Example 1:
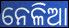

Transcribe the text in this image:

ନେଳିଆ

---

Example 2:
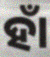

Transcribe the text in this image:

ହାଁ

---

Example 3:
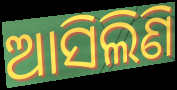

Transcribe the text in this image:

ଆସିଲିଣି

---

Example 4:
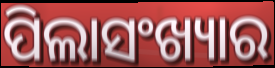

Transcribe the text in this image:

ପିଲାସଂଖ୍ୟାର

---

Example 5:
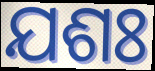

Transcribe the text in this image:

ଯଶଃ